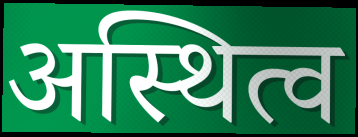
अस्थित्व